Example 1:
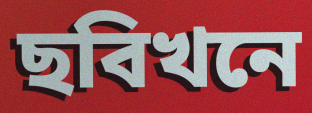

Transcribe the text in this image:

ছবিখনে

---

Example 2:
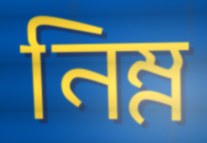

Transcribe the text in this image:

নিম্ন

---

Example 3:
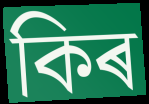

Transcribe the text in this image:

কিৰ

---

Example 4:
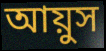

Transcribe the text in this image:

আয়ুস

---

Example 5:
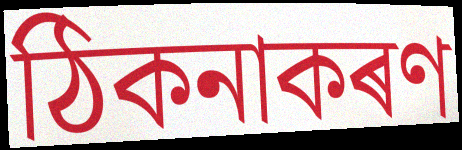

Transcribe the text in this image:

ঠিকনাকৰণ